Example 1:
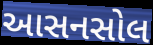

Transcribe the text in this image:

આસનસોલ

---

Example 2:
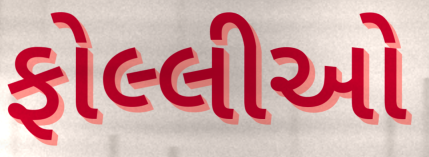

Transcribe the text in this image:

ફોલ્લીઓ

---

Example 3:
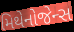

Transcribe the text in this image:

મિથેનોજેન્સ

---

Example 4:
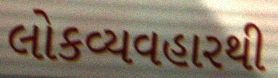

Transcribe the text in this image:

લોકવ્યવહારથી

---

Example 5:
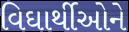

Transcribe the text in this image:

વિઘાર્થીઓને